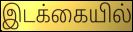
இடக்கையில்